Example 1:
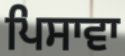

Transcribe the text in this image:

ਪਿਸਾਵਾ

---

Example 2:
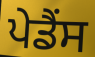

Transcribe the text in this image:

ਪੇਡੈਂਸ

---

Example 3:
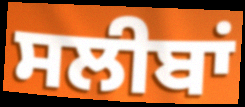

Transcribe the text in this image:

ਸਲੀਬਾਂ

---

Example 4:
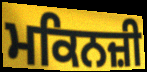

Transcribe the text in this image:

ਮਕਿਨਜ਼ੀ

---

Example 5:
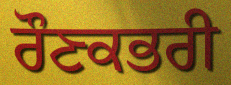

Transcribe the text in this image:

ਰੌਣਕਭਰੀ